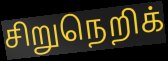
சிறுநெறிக்